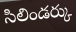
సిలిండర్కు